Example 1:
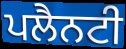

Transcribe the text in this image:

ਪਲੈਨਟੀ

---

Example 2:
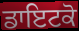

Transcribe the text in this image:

ਡਾਇਟਕੋ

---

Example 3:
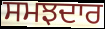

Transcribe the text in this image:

ਸਮਝਦਾਰ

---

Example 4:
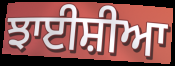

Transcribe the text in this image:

ਝਾਈਸ਼ੀਆ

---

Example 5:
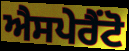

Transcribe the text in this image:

ਐਸਪੇਰੈਂਟੋ